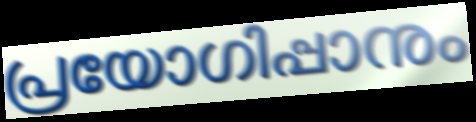
പ്രയോഗിപ്പാനും